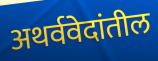
अथर्ववेदांतील